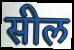
सील